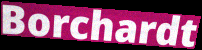
Borchardt